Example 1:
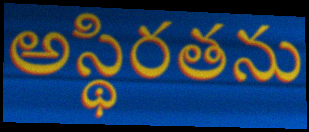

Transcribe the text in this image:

అస్థిరతను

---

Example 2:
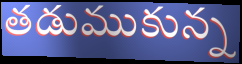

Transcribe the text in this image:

తడుముకున్న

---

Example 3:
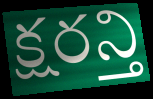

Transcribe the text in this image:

క్షరన్తి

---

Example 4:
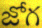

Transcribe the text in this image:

జోగ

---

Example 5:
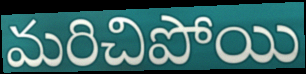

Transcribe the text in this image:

మరిచిపోయి